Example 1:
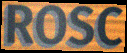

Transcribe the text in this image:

ROSC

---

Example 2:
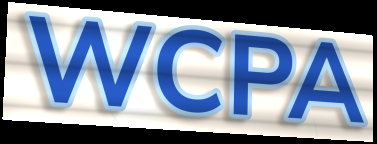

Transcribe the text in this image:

WCPA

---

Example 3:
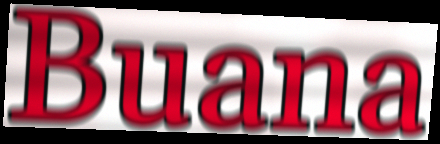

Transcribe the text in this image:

Buana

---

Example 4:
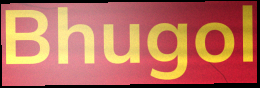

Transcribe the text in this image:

Bhugol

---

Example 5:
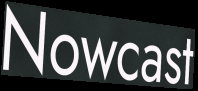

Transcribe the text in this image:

Nowcast